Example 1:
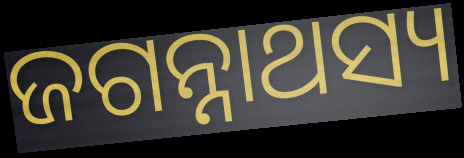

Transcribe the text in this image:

ଜଗନ୍ନାଥସ୍ୟ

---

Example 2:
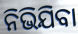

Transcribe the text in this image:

ନିଭିଯିବା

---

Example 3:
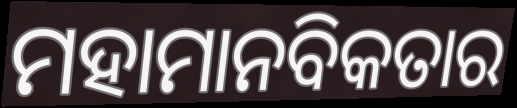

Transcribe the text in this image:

ମହାମାନବିକତାର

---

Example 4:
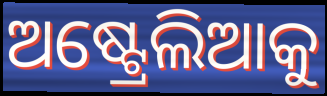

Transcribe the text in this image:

ଅଷ୍ଟ୍ରେଲିଆକୁ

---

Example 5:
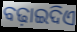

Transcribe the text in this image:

ବଢ଼ାଇଦିଏ